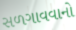
સળગાવવાનો